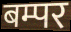
बम्पर